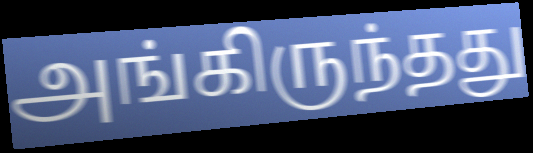
அங்கிருந்தது